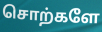
சொற்களே